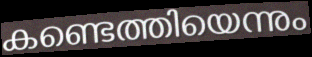
കണ്ടെത്തിയെന്നും